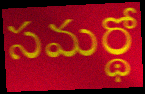
సమర్థో